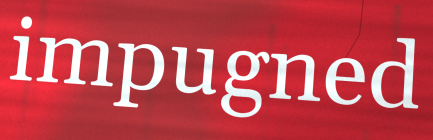
impugned